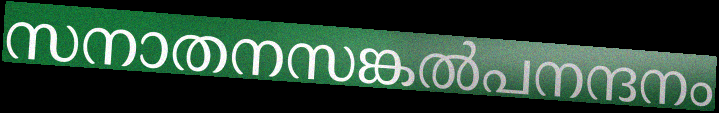
സനാതനസങ്കൽപനന്ദനം